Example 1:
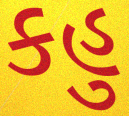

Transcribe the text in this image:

કહુ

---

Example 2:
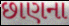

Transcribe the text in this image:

છાણના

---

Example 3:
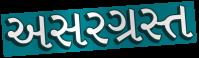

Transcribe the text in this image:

અસરગ્રસ્ત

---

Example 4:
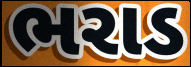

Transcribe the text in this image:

ભરાડ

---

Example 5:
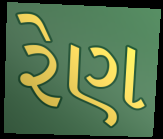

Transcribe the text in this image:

રેણ